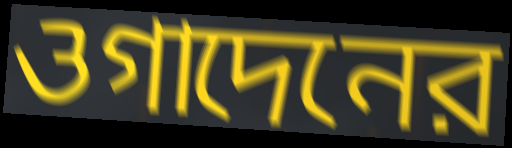
ওগাদেনের